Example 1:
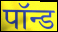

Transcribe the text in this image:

पॉन्ड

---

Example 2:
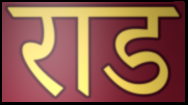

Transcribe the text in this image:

राड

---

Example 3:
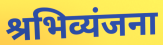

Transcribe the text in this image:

श्रभिव्यंजना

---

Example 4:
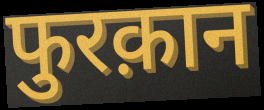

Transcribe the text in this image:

फुरक़ान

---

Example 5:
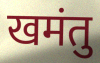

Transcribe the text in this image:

खमंतु